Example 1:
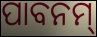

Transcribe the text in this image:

ପାବନମ୍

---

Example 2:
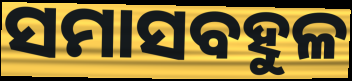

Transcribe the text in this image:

ସମାସବହୁଳ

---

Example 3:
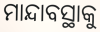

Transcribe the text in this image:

ମାନ୍ଦାବସ୍ଥାକୁ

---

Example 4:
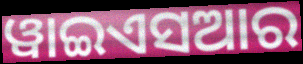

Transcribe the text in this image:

ୱାଇଏସଆର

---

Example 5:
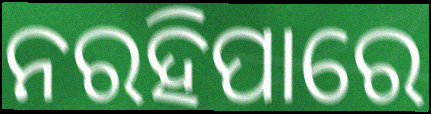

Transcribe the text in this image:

ନରହିପାରେ